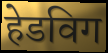
हेडविग